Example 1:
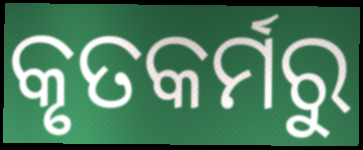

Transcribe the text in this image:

କୃତକର୍ମରୁ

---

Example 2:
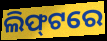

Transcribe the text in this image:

ଲିଫ୍‍ଟରେ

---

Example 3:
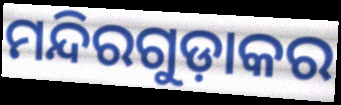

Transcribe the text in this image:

ମନ୍ଦିରଗୁଡ଼ାକର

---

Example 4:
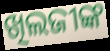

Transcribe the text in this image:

ଖିଲଜୀଙ୍କ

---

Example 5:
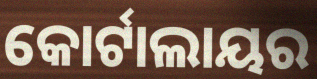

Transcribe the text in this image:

କୋର୍ଟାଲାୟର